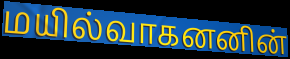
மயில்வாகனனின்